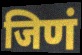
जिणं